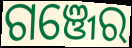
ଗଞ୍ଜେର